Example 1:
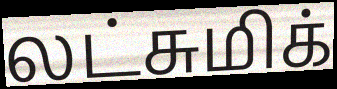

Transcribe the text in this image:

லட்சுமிக்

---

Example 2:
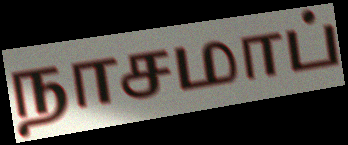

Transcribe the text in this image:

நாசமாப்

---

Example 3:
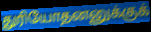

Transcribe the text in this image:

துரியோதனனுக்குக்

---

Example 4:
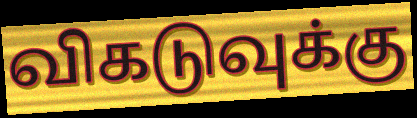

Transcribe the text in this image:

விகடுவுக்கு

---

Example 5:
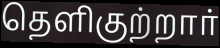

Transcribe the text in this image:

தெளிகுற்றார்